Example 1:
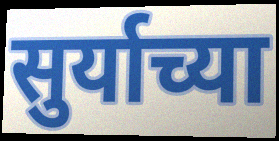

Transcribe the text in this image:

सुर्याच्या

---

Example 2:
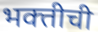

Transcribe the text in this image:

भक्‍तीची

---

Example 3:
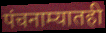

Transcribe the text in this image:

पंचनाम्यातही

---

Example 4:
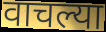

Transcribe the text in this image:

वाचल्या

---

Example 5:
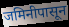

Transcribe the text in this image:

जमिनीपासून